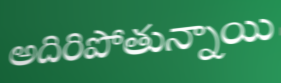
అదిరిపోతున్నాయి